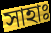
সাহাঃ